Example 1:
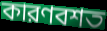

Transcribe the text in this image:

কারণবশত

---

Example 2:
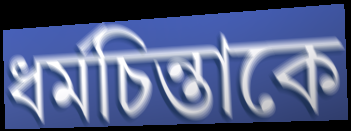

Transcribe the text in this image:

ধর্মচিন্তাকে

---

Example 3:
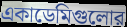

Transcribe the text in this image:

একাডেমিগুলোর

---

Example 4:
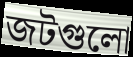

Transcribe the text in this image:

জটগুলো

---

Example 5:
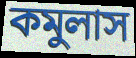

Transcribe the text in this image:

কমুলাস